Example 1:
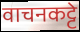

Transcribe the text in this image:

वाचनकट्टे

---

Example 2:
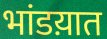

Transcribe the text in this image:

भांडय़ात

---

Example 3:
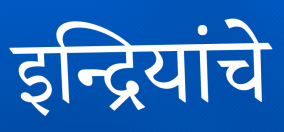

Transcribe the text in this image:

इन्द्रियांचे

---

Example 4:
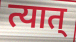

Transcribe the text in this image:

त्यात्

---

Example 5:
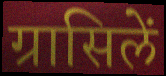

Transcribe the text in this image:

ग्रासिलें